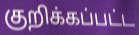
குறிக்கப்பட்ட